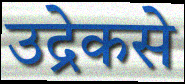
उद्रेकसे